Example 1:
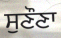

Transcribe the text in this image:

ਸੁਣੌਣਾ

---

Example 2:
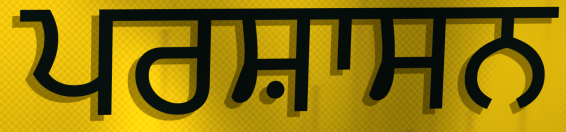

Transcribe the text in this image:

ਪਰਸ਼ਾਸਨ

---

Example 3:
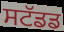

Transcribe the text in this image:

ਸਟੱਡਡ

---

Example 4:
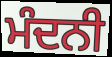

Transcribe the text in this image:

ਮੰਦਨੀ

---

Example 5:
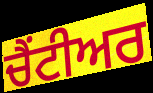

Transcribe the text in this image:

ਚੈਂਟੀਅਰ